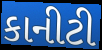
કાનીટી